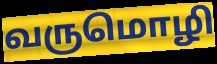
வருமொழி